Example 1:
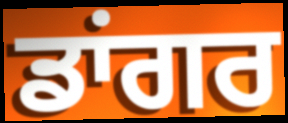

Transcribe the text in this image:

ਡਾਂਗਰ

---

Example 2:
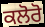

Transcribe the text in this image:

ਕਲੋਰੋ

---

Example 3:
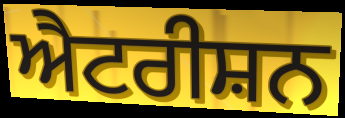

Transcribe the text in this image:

ਐਟਰੀਸ਼ਨ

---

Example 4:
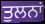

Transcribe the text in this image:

ਤੁਲਨਾਂ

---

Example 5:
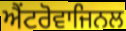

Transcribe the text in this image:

ਐਂਟਰੋਵਾਜਿਨਲ